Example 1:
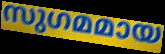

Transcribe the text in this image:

സുഗമമായ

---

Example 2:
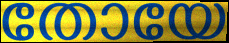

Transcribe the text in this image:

തോയേ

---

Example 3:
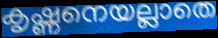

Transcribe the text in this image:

കൃഷ്ണനെയല്ലാതെ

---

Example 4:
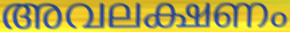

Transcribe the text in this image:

അവലക്ഷണം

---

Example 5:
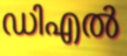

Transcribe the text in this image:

ഡിഎൽ